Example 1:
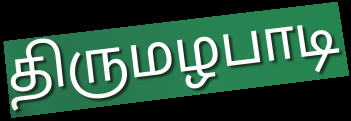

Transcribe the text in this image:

திருமழபாடி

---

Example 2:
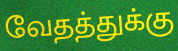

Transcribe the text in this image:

வேதத்துக்கு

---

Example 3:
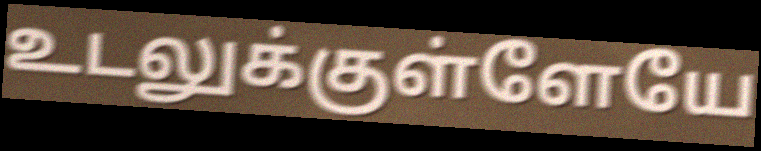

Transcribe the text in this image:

உடலுக்குள்ளேயே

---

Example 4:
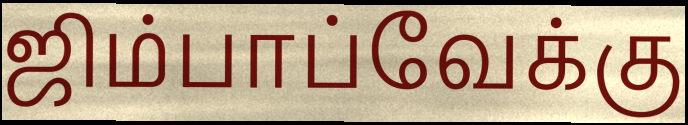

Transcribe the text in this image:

ஜிம்பாப்வேக்கு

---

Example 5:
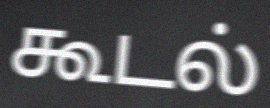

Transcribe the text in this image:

கூடல்